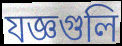
যজ্ঞগুলি